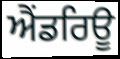
ਐਂਡਰਿਊ